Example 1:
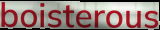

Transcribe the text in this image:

boisterous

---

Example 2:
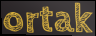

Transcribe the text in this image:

ortak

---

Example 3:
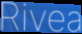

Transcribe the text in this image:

Rivea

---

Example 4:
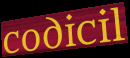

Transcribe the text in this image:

codicil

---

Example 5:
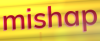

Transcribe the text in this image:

mishap